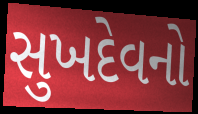
સુખદેવનો